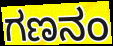
ಗಣನಂ